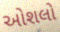
ઓશલો